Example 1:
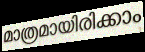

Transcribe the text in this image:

മാത്രമായിരിക്കാം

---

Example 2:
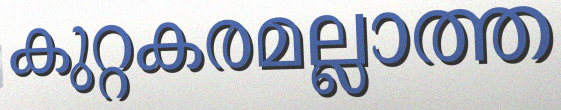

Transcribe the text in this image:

കുറ്റകരമല്ലാത്ത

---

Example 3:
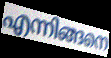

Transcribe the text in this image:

എന്നിങ്ങനെ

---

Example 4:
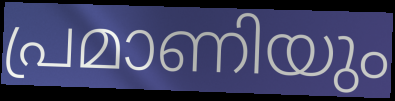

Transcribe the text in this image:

പ്രമാണിയും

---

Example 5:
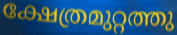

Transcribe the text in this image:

ക്ഷേത്രമുറ്റത്തു